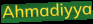
Ahmadiyya